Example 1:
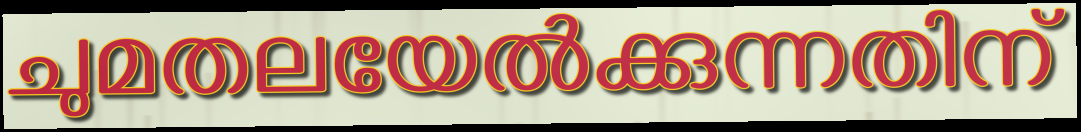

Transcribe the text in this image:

ചുമതലയേൽക്കുന്നതിന്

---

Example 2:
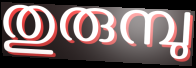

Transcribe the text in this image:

തുരുമ്പു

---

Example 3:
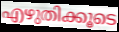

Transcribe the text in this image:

എഴുതിക്കൂടെ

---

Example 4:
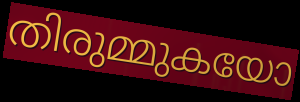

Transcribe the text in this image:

തിരുമ്മുകയോ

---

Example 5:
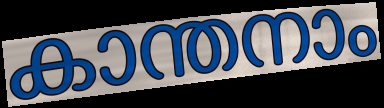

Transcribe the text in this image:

കാന്തനാം